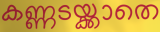
കണ്ണടയ്ക്കാതെ